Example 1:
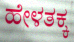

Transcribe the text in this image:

ಹೇಳತಕ್ಕ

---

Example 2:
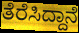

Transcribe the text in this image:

ತೆರೆಸಿದ್ದಾನೆ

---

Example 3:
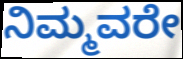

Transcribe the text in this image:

ನಿಮ್ಮವರೇ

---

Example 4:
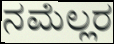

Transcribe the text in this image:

ನಮೆಲ್ಲರ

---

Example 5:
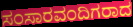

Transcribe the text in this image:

ಸಂಸಾರವಂದಿಗರಾದ